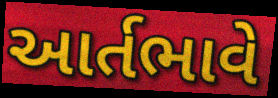
આર્તભાવે